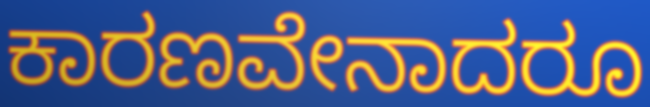
ಕಾರಣವೇನಾದರೂ